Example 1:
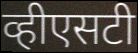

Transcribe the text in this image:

व्हीएसटी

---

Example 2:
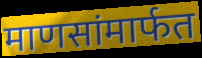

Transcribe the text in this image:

माणसांमार्फत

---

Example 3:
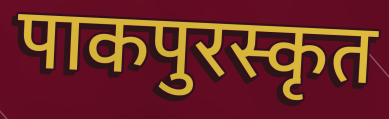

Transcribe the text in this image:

पाकपुरस्कृत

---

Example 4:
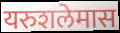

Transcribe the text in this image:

यरुशलेमास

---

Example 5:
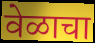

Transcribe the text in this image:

वेळाचा